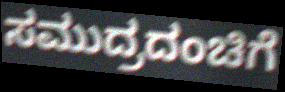
ಸಮುದ್ರದಂಚಿಗೆ